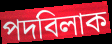
পদবিলাক